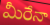
మీరేనా